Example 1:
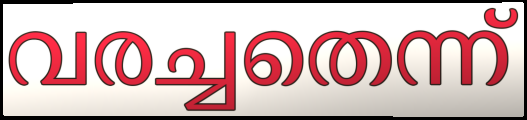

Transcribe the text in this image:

വരച്ചതെന്ന്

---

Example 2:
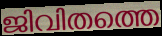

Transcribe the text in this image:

ജിവിതത്തെ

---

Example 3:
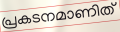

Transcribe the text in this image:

പ്രകടനമാണിത്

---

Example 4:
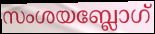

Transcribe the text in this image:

സംശയബ്ലോഗ്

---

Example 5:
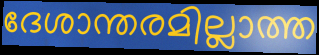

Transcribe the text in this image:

ദേശാന്തരമില്ലാത്ത